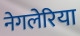
नेगलेरिया